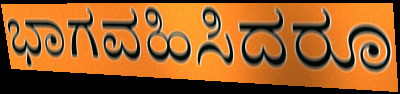
ಭಾಗವಹಿಸಿದರೂ